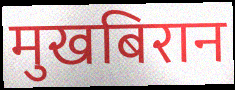
मुखबिरान